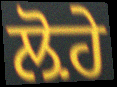
ਲ਼ੋਹੇ